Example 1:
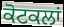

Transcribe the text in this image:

ਕੋਟਕਲਾਂ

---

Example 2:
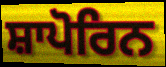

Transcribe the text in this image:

ਸ਼ਾਪੋਰਿਨ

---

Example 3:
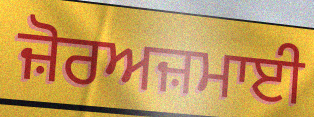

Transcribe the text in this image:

ਜ਼ੋਰਅਜ਼ਮਾਈ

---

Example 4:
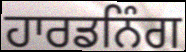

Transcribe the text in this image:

ਹਾਰਡਨਿੰਗ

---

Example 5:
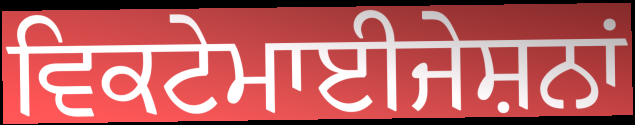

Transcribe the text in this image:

ਵਿਕਟੇਮਾਈਜੇਸ਼ਨਾਂ